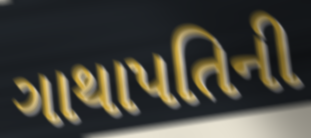
ગાથાપતિની